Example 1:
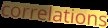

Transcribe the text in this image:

correlations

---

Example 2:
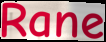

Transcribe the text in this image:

Rane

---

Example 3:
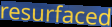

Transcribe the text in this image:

resurfaced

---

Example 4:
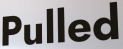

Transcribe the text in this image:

Pulled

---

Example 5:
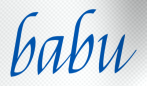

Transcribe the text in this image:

babu